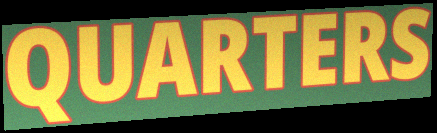
QUARTERS